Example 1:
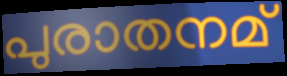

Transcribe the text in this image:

പുരാതനമ്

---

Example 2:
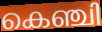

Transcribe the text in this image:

കെഞ്ചി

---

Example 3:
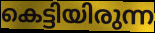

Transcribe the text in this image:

കെട്ടിയിരുന്ന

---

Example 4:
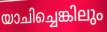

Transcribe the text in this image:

യാചിച്ചെങ്കിലും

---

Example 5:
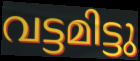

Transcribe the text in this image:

വട്ടമിട്ടു